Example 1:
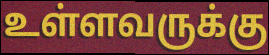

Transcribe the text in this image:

உள்ளவருக்கு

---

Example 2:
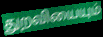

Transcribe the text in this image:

துறவியையும்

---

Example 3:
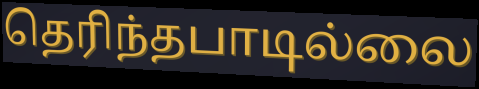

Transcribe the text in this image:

தெரிந்தபாடில்லை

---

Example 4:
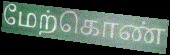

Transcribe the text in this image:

மேற்கொண்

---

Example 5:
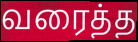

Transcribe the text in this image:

வரைத்த